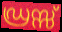
ഡ്രസ്സ്